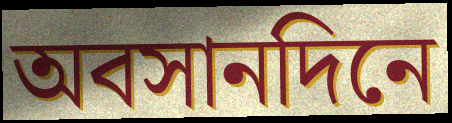
অবসানদিনে